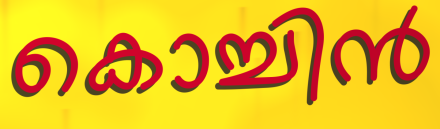
കൊച്ചിൻ